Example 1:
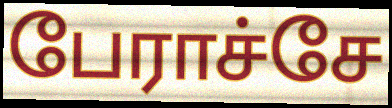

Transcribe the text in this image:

பேராச்சே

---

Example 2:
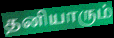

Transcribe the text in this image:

தனியாரும்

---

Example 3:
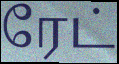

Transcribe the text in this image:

ரேட்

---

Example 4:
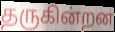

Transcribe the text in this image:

தருகின்றன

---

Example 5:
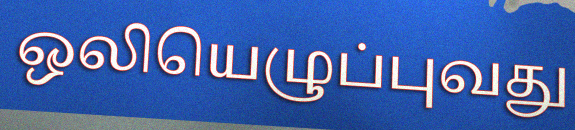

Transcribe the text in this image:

ஒலியெழுப்புவது